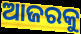
ଆଜରକୁ